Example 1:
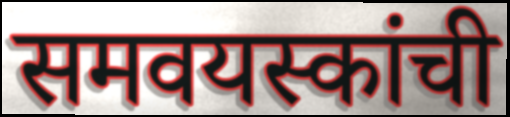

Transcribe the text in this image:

समवयस्कांची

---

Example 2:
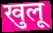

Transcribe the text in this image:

खुलू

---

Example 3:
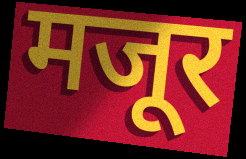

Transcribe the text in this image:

मजूर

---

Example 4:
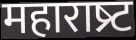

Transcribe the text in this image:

महाराष्र्ट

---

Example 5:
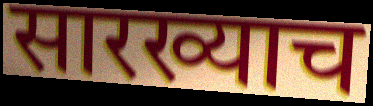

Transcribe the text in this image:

सारख्याच